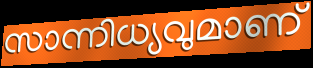
സാന്നിധ്യവുമാണ്